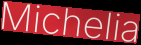
Michelia